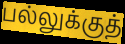
பல்லுக்குத்